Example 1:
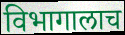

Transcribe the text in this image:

विभागालाच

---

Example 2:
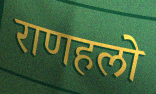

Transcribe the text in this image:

राणहलो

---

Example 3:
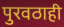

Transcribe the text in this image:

पुरवठाही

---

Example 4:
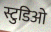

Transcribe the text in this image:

स्टुडिओ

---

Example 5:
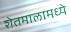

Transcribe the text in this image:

शेतमालामध्ये